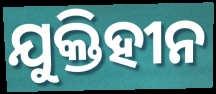
ଯୁକ୍ତିହୀନ